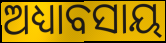
ଅଧ୍ୟାବସାୟ